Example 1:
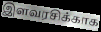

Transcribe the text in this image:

இளவரசிக்காக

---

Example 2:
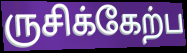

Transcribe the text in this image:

ருசிக்கேற்ப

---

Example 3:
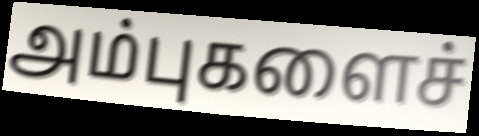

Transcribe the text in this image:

அம்புகளைச்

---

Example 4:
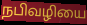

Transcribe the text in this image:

நபிவழியை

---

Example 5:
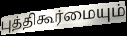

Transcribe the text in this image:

புத்திகூர்மையும்